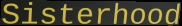
Sisterhood